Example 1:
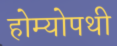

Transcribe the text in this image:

होम्योपथी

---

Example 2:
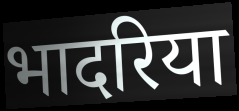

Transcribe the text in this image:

भादरिया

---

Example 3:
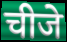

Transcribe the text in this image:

चीजे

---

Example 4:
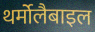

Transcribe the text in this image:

थर्मोलैबाइल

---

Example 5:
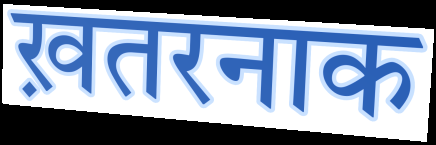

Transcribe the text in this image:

ख़तरनाक